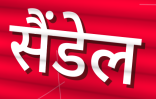
सैंडेल